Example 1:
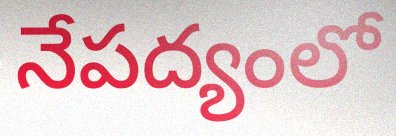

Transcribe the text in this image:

నేపద్యంలో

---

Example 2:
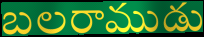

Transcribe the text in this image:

బలరాముడు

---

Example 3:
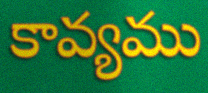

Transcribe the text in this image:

కావ్యము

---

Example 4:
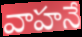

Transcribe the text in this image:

వాహనే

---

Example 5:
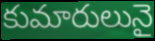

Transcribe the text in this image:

కుమారులునై